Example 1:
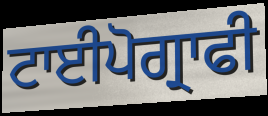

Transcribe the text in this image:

ਟਾਈਪੋਗ੍ਰਾਫੀ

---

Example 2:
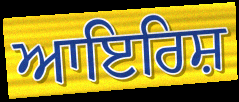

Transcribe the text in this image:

ਆਇਰਿਸ਼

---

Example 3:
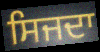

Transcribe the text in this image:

ਸਿਜਦਾ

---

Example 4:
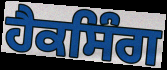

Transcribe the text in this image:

ਹੈਕਸਿੰਗ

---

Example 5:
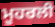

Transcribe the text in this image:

ਮੂਹਰਲੀ